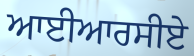
ਆਈਆਰਸੀਏ